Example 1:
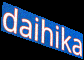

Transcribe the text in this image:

daihika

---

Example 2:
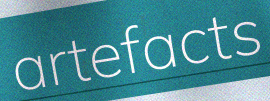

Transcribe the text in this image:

artefacts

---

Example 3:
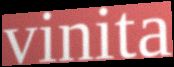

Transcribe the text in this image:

vinita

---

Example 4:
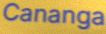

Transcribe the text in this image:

Cananga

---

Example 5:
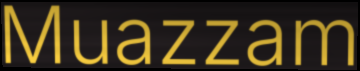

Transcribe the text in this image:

Muazzam